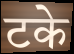
टके